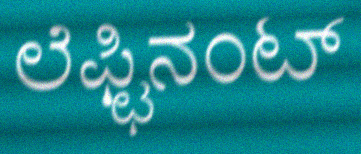
ಲೆಫ್ಟಿನಂಟ್